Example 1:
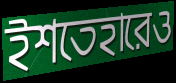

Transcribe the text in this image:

ইশতেহারেও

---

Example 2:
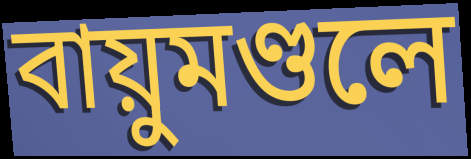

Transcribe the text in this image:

বায়ুমণ্ডলে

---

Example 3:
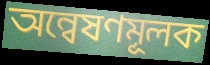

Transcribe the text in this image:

অন্বেষণমূলক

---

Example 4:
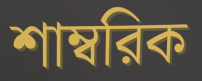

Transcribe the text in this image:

শাম্বরিক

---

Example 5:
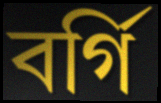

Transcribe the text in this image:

বর্গি